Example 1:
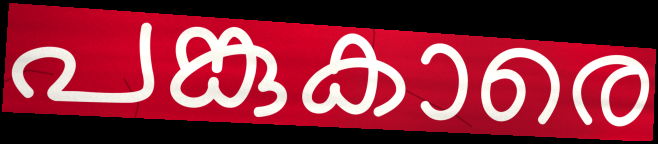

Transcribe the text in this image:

പങ്കുകാരെ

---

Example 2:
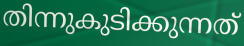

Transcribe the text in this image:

തിന്നുകുടിക്കുന്നത്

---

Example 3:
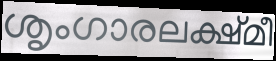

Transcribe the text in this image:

ശൃംഗാരലക്ഷ്മീ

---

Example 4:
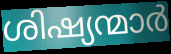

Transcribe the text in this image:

ശിഷ്യന്മാർ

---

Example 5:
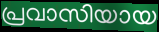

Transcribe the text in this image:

പ്രവാസിയായ